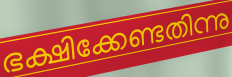
ഭക്ഷിക്കേണ്ടതിന്നു